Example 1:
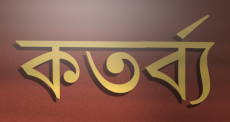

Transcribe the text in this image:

কতর্ব্য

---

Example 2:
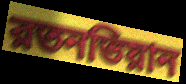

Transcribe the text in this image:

রতনভিয়ান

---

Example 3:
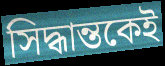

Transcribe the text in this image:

সিদ্ধান্তকেই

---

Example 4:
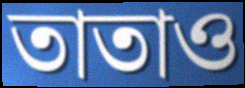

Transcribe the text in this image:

তাতাও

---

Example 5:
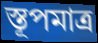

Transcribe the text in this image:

স্তূপমাত্র